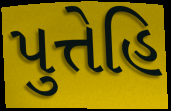
પુત્તેહિ